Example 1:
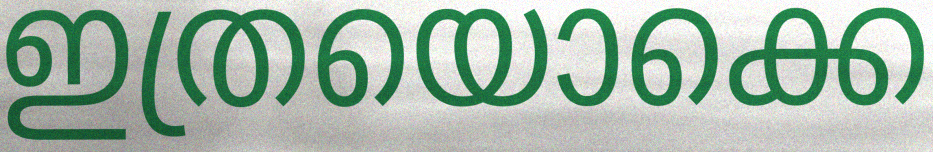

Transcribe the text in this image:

ഇത്രയൊക്കെ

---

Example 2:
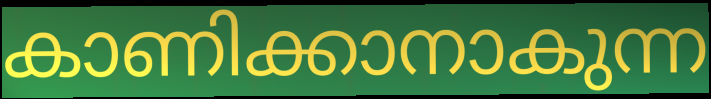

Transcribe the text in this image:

കാണിക്കാനാകുന്ന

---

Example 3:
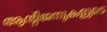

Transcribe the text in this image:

ആന്റിജനുകളുടെ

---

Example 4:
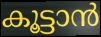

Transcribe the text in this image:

കൂട്ടാൻ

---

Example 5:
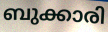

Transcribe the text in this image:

ബുക്കാരി